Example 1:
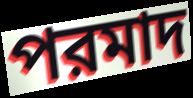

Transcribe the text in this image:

পরমাদ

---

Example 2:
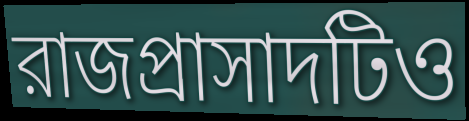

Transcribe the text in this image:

রাজপ্রাসাদটিও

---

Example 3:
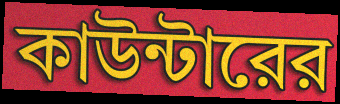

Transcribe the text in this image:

কাউন্টারের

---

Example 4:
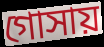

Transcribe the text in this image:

গোসায়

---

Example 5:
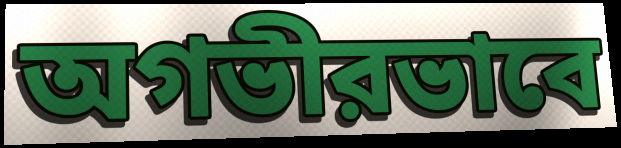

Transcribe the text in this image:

অগভীরভাবে